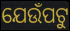
ଯେଉଁପଟୁ